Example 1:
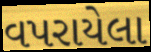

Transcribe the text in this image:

વપરાયેલા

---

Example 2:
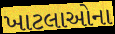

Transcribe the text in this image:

ખાટલાઓના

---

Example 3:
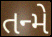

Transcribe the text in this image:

તન્મે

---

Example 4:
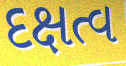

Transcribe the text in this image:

દક્ષત્વ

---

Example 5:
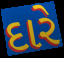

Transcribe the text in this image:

દારે